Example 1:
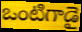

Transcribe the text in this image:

ఒంటిగాడై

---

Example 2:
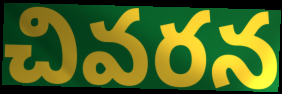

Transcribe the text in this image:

చివరన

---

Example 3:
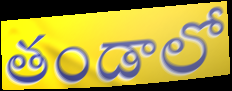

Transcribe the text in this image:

తండాలో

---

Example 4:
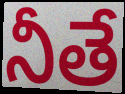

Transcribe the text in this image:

నీతే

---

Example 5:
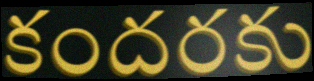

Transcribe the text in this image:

కందరకు